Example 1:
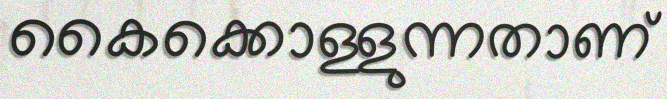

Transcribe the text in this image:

കൈക്കൊള്ളുന്നതാണ്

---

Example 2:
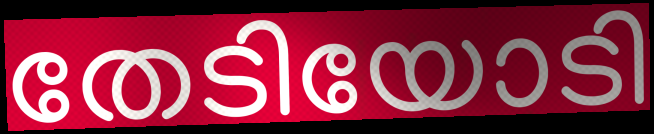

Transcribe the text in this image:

തേടിയോടി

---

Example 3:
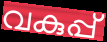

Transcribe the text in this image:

വകുപ്പ്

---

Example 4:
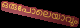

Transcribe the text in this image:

ഒരുപോലെയാവും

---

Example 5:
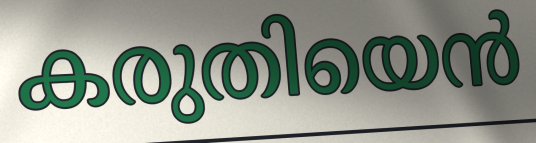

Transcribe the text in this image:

കരുതിയെൻ